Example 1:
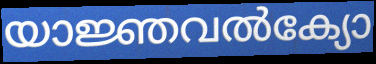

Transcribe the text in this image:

യാജ്ഞവൽക്യോ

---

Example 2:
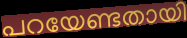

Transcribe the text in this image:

പറയേണ്ടതായി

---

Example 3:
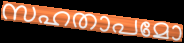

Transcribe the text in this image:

സഹതാപമോ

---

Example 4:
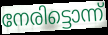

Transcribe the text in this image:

നേരിട്ടൊന്ന്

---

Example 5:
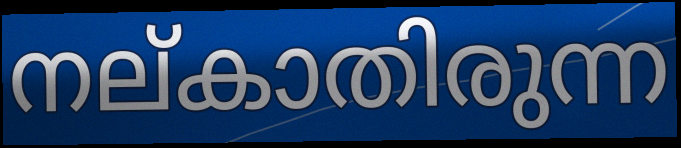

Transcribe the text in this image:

നല്കാതിരുന്ന